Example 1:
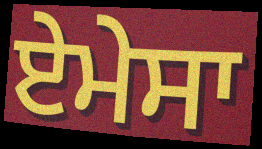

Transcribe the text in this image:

ਏਮੇਸਾ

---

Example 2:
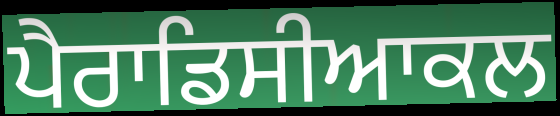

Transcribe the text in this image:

ਪੈਰਾਡਿਸੀਆਕਲ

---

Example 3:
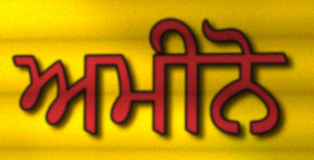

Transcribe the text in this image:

ਅਮੀਨੋ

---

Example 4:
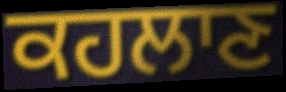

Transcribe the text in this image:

ਕਹਲਾਣ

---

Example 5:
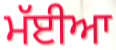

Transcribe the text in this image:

ਮੱਈਆ